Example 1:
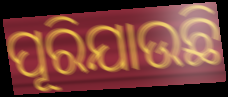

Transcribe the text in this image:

ପୂରିଯାଉଛି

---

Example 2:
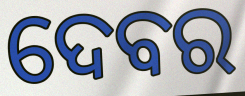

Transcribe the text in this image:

ଦେବର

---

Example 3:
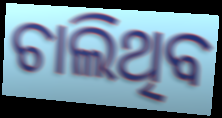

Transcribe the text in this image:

ଚାଲିଥିବ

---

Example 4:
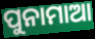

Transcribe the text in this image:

ପୁନାମାଆ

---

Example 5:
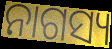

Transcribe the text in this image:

ନାଗସ୍ୟ